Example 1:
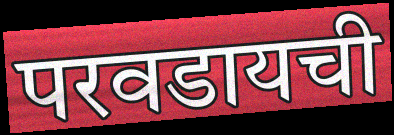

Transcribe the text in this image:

परवडायची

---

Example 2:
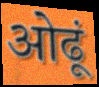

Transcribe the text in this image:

ओढूं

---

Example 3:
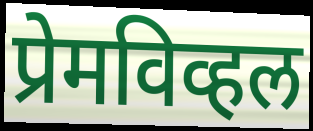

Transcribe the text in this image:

प्रेमविव्हल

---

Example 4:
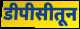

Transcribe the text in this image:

डीपीसीतून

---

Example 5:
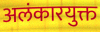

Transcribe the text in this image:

अलंकारयुक्त